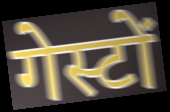
गेस्टों